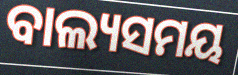
ବାଲ୍ୟସମୟ